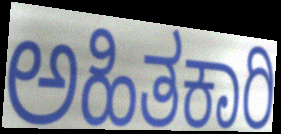
ಅಹಿತಕಾರಿ